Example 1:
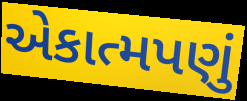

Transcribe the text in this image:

એકાત્મપણું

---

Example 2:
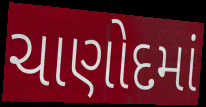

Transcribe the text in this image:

ચાણોદમાં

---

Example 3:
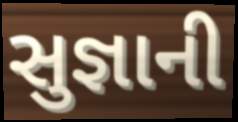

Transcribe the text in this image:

સુજ્ઞાની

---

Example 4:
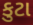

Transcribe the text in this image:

કુટા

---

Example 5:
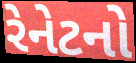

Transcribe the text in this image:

રેનેટનો